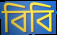
বিবি